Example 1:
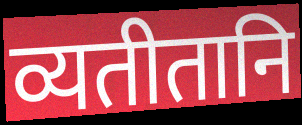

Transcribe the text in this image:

व्यतीतानि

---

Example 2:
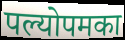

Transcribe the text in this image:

पल्योपमका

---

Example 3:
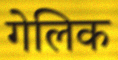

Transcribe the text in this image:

गेलिक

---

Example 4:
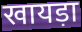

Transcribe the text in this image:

खायड़ा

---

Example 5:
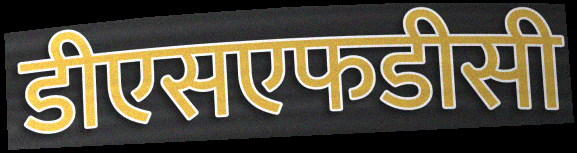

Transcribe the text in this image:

डीएसएफडीसी